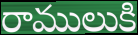
రాములుకి